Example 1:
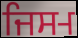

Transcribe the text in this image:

ਜਿਸ੍ਮ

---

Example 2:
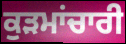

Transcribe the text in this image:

ਕੁੜਮਾਂਚਾਰੀ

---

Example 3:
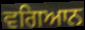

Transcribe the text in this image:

ਵਗਿਆਨ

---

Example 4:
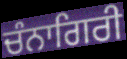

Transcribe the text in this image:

ਚੰਨਾਗਿਰੀ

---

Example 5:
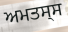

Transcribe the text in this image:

ਅਮਤਸ੍ਸ